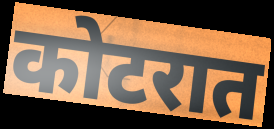
कोटरात